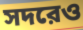
সদরেও